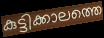
കുട്ടിക്കാലത്തെ